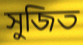
সুজিত